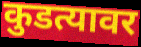
कुडत्यावर